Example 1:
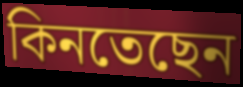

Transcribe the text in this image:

কিনতেছেন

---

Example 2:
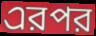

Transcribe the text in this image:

এরপর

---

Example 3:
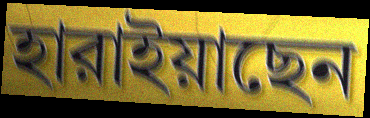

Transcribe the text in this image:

হারাইয়াছেন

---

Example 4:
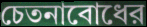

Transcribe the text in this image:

চেতনাবোধের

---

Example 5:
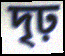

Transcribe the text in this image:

দৃঢ়